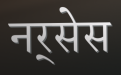
नर्सेस